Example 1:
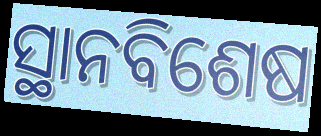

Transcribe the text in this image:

ସ୍ଥାନବିଶେଷ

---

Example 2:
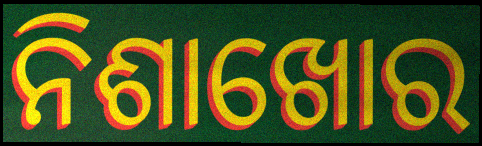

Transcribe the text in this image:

ନିଶାଖୋର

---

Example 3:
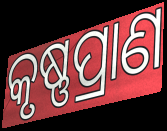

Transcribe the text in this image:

କୃଷ୍ଣପ୍ରାଣ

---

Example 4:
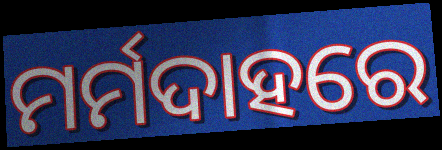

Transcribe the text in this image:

ମର୍ମଦାହରେ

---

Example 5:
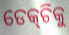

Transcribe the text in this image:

ଡେକ୍‌ଚିକୁ